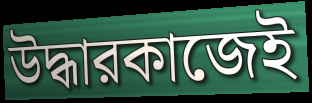
উদ্ধারকাজেই